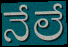
నేలే